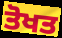
ਤੋਖਤ